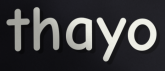
thayo